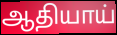
ஆதியாய்